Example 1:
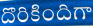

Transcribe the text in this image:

దొరికిందిగా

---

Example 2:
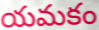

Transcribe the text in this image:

యమకం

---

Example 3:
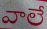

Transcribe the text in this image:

వాలే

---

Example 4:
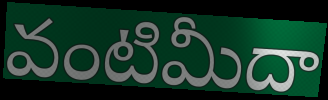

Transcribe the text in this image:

వంటిమీదా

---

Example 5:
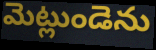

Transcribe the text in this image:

మెట్లుండెను